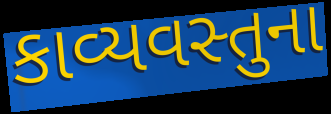
કાવ્યવસ્તુના